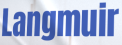
Langmuir